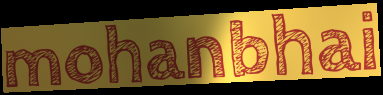
mohanbhai